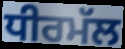
ਧੀਰਮੱਲ